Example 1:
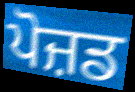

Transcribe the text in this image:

ਪੋਜ਼ਡ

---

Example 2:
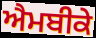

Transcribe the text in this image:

ਐਮਬੀਕੇ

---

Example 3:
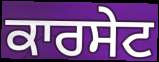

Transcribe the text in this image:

ਕਾਰਸੇਟ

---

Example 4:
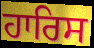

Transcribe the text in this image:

ਹਾਰਿਸ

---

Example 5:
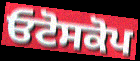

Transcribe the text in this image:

ਓਟੋਸਕੋਪ